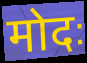
मोदः